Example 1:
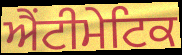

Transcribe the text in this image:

ਐਂਟੀਮੇਟਿਕ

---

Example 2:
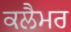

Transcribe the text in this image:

ਕਲੈਮਰ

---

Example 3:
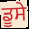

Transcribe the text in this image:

ਡੂਸੇ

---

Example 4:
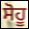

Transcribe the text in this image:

ਸੋਹੂ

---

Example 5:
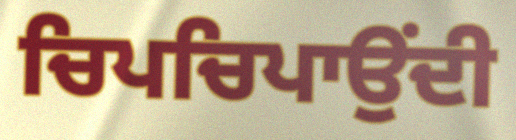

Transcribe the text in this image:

ਚਿਪਚਿਪਾਉਂਦੀ